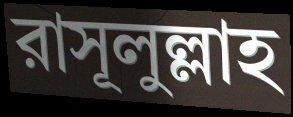
রাসূলুল্লাহ